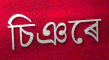
চিঞৰে